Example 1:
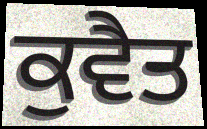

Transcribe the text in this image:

ਕੁਵੈਤ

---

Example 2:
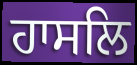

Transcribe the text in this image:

ਹਾਸਲਿ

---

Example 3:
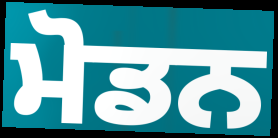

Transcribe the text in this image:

ਮੋਡਨ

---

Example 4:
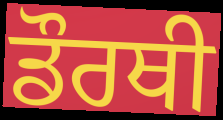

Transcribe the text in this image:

ਡੌਰਥੀ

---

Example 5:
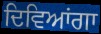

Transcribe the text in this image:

ਦਿਵਿਆਂਗਾ